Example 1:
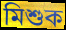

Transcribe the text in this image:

মিশুক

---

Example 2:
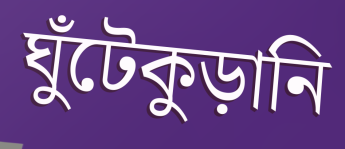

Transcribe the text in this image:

ঘুঁটেকুড়ানি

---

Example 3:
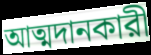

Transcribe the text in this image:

আত্মদানকারী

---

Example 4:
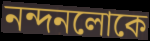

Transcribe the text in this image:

নন্দনলোকে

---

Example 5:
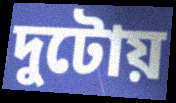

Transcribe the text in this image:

দুটোয়